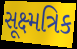
સૂક્ષ્મત્રિક